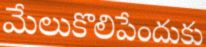
మేలుకొలిపేందుకు